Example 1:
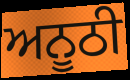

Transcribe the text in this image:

ਅਨੂਠੀ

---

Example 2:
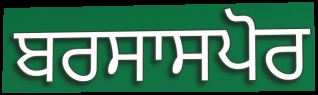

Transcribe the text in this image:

ਬਰਸਾਸਪੋਰ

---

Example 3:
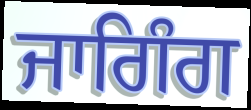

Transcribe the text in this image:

ਜਾਗਿੰਗ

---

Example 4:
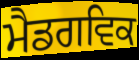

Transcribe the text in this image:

ਮੈਡਗਵਿਕ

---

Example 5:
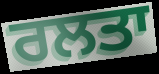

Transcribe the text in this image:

ਰਲਤਾ